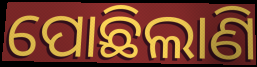
ପୋଛିଲାଣି